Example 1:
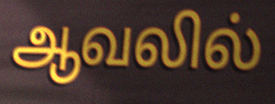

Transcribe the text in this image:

ஆவலில்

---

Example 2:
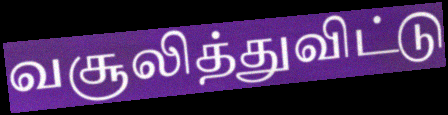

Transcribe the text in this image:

வசூலித்துவிட்டு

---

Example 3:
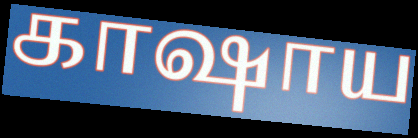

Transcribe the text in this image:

காஷாய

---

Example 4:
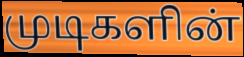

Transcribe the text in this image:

முடிகளின்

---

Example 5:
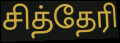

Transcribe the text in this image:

சித்தேரி